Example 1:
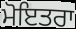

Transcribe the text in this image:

ਮੋਇਤਰਾ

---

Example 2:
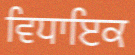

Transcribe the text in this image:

ਵਿਧਾਇਕ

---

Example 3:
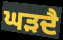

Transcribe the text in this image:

ਘੜਦੈ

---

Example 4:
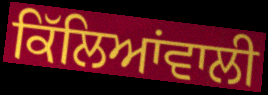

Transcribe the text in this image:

ਕਿੱਲਿਆਂਵਾਲੀ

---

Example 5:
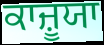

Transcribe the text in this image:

ਕਾਜ਼ੂਯਾ